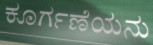
ಕೂರ್ಗಣೆಯನು